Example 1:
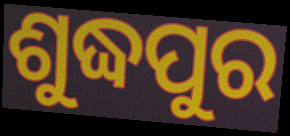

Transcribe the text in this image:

ଶୁଦ୍ଧପୁର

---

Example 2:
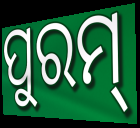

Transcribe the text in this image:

ପୁରମ୍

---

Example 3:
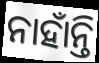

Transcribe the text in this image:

ନାହାଁନ୍ତି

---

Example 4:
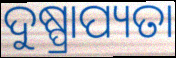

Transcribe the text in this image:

ଦୁଷ୍ପ୍ରାପ୍ୟତା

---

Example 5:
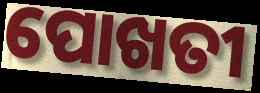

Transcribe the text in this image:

ପୋଖତୀ